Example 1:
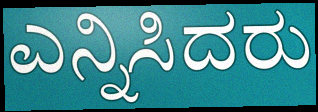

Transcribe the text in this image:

ಎನ್ನಿಸಿದರು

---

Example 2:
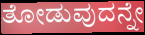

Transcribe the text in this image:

ತೋಡುವುದನ್ನೇ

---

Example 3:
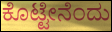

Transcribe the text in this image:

ಕೊಟ್ಟೇನೆಂದು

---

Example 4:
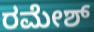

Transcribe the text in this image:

ರಮೇಶ್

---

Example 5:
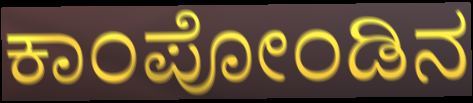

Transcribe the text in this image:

ಕಾಂಪೋಂಡಿನ